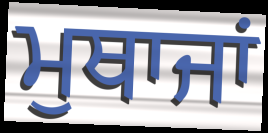
ਮੁਥਾਜਾਂ